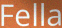
Fella